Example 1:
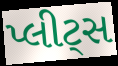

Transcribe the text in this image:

પ્લીટ્સ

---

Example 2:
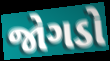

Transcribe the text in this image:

જોગડો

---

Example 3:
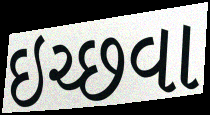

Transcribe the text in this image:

ઇચ્છવા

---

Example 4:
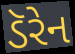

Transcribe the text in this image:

ડૅરેન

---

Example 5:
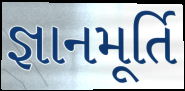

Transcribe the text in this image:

જ્ઞાનમૂર્તિ